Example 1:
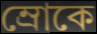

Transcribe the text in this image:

ম্রোকে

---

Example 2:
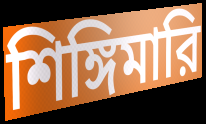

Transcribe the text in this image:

শিঙ্গিমারি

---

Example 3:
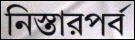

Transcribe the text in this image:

নিস্তারপর্ব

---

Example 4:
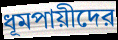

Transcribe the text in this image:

ধূমপায়ীদের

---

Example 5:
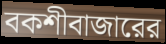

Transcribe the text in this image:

বকশীবাজারের